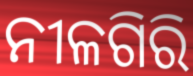
ନୀଳଗିରି